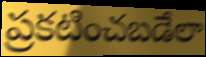
ప్రకటించబడేలా